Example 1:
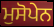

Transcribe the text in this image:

ਮੁਸੋਪੇਨ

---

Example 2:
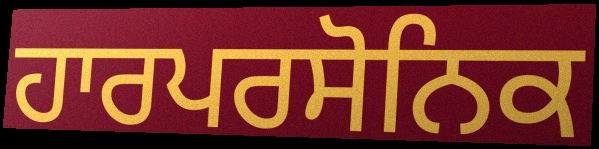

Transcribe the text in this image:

ਹਾਰਪਰਸੋਨਿਕ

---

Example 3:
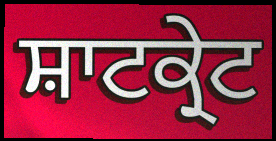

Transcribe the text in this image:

ਸ਼ਾਟਕ੍ਰੇਟ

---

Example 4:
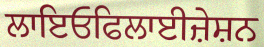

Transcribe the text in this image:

ਲਾਇਓਫਿਲਾਈਜ਼ੇਸ਼ਨ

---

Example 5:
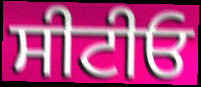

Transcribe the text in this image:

ਸੀਟੀਓ